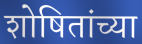
शोषितांच्या